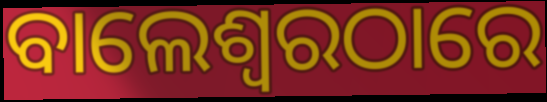
ବାଲେଶ୍ଵରଠାରେ